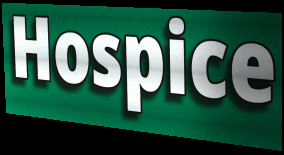
Hospice